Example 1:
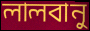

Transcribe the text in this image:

লালবানু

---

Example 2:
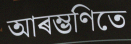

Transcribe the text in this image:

আৰম্ভণিতে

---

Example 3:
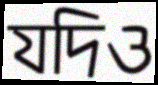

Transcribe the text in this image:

যদিও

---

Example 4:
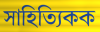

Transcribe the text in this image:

সাহিত্যিকক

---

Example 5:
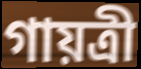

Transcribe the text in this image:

গায়ত্ৰী